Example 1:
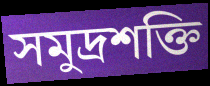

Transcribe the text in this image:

সমুদ্রশক্তি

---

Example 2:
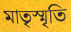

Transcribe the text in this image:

মাতৃস্মৃতি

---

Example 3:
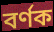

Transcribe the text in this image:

বর্ণক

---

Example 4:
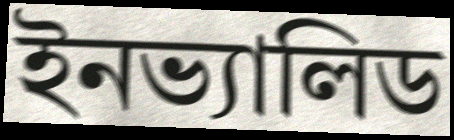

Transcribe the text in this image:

ইনভ্যালিড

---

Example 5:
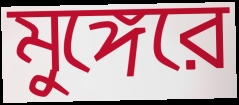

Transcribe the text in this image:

মুঙ্গেরে